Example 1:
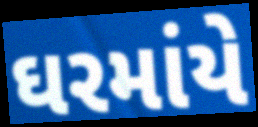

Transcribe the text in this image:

ઘરમાંયે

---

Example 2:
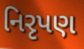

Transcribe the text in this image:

નિરૃપણ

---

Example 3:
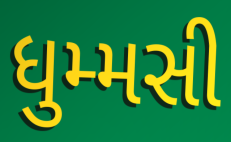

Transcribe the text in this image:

ધુમ્મસી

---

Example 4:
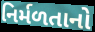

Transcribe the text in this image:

નિર્મળતાનો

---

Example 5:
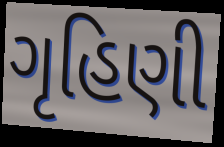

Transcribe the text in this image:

ગૃહિણી